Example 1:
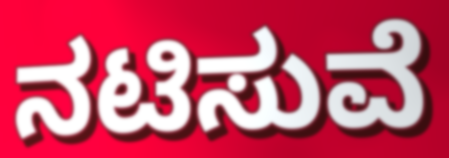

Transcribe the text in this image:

ನಟಿಸುವೆ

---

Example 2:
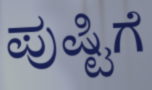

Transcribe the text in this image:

ಪುಷ್ಟಿಗೆ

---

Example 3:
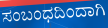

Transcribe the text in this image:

ಸಂಬಂಧದಿಂದಾಗಿ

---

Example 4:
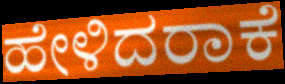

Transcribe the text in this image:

ಹೇಳಿದರಾಕೆ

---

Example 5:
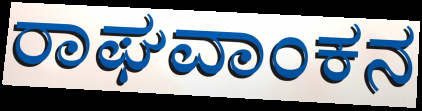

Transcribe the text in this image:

ರಾಘವಾಂಕನ